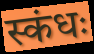
स्कंधः